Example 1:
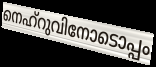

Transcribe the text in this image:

നെഹ്റുവിനോടൊപ്പം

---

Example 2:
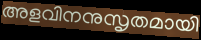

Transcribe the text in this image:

അളവിനനുസൃതമായി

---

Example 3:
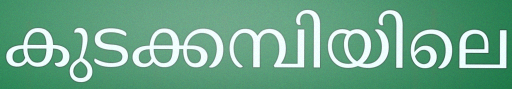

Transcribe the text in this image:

കുടക്കമ്പിയിലെ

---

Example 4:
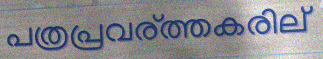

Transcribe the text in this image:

പത്രപ്രവര്ത്തകരില്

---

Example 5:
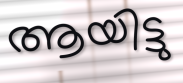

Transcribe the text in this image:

ആയിട്ടു